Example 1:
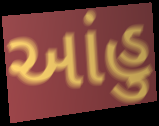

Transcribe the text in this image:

આંહુ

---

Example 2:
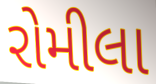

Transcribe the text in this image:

રોમીલા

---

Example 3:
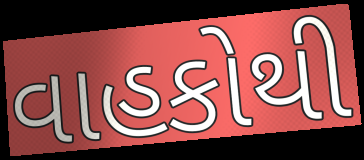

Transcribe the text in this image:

વાહકોથી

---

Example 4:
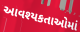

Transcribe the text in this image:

આવશ્યકતાઓમાં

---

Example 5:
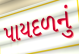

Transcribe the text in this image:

પાયદળનું